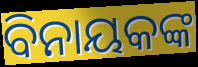
ବିନାୟକଙ୍କ